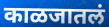
काळजातलं